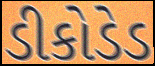
ડીકોડેડ